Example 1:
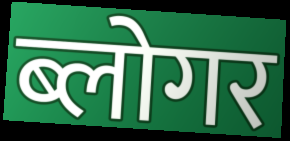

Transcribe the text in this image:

ब्लोगर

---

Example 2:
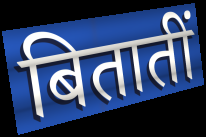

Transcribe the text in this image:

बितातीं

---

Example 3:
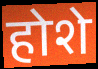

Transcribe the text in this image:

होशे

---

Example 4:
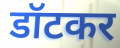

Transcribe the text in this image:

डॉटकर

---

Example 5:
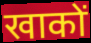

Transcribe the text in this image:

खाकों